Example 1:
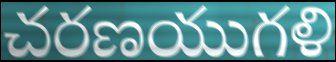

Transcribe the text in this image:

చరణయుగళి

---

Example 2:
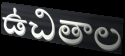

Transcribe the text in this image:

ఉచితాల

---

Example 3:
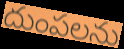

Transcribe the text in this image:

దుంపలను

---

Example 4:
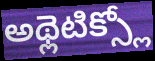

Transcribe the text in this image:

అథ్లెటిక్స్లో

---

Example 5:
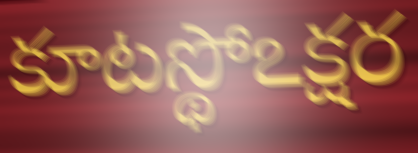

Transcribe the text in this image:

కూటస్థోఽక్షర